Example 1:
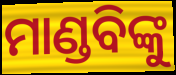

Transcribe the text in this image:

ମାଣ୍ଡବିଙ୍କୁ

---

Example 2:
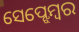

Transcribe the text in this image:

ସେପ୍ଝେମ୍ବର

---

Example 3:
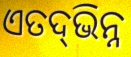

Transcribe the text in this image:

ଏତଦ୍‌ଭିନ୍ନ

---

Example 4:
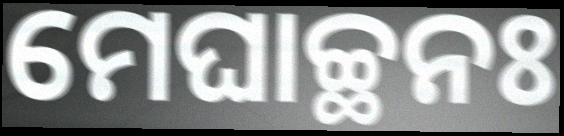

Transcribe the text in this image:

ମେଘାଚ୍ଛନଃ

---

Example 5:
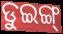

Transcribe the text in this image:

ଡୁଇଙ୍ଗ୍